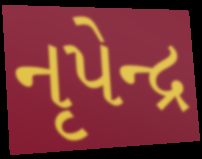
નૃપેન્દ્ર